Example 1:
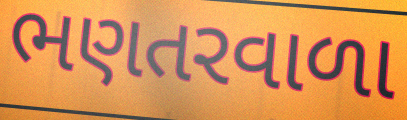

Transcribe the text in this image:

ભણતરવાળા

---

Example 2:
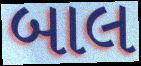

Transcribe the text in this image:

બાલ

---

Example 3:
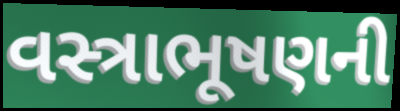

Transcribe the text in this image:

વસ્ત્રાભૂષણની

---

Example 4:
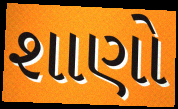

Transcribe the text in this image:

શાણો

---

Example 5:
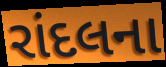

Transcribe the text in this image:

રાંદલના